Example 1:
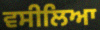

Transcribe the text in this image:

ਵਸੀਲਿਆ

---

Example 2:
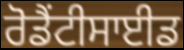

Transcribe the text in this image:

ਰੋਡੈਂਟੀਸਾਈਡ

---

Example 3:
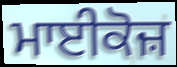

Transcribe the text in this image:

ਮਾਈਕੋਜ਼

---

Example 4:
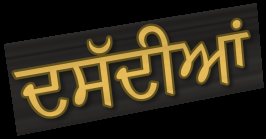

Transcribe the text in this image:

ਦਸੱਦੀਆਂ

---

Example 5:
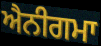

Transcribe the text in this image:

ਐਨੀਗਮਾ